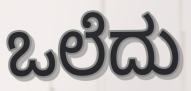
ಒಲೆದು